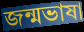
জন্মভাষা